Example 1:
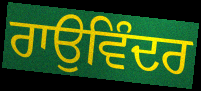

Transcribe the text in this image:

ਰਾਉਵਿੰਦਰ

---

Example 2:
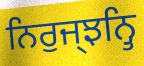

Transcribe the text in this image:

ਨਿਰੁਜ੍ਝਨ੍ਤਿ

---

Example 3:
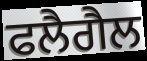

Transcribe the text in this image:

ਫਲੈਗੈਲ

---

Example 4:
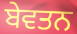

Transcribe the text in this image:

ਬੇਵਤਨ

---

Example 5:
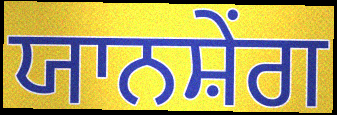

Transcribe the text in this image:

ਯਾਨਸ਼ੇਂਗ